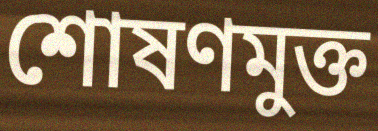
শোষণমুক্ত